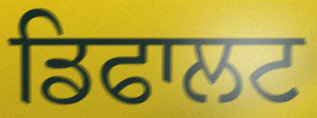
ਡਿਫਾਲਟ